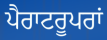
ਪੈਰਾਟਰੂਪਰਾਂ